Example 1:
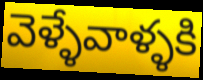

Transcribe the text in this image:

వెళ్ళేవాళ్ళకి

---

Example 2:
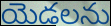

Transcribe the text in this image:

యెడలను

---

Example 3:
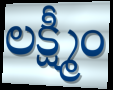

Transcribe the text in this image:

లక్ష్మీం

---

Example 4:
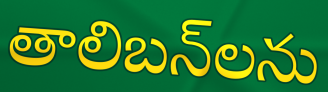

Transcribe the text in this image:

తాలిబన్‌లను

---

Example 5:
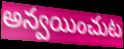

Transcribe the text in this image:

అన్వయించుట